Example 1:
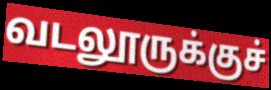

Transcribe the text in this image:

வடலூருக்குச்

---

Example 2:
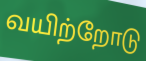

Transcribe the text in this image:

வயிற்றோடு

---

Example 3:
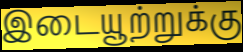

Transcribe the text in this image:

இடையூற்றுக்கு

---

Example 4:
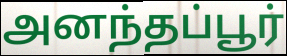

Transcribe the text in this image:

அனந்தப்பூர்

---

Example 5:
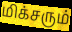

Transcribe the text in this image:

மிக்சரும்